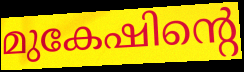
മുകേഷിന്റെ